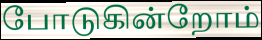
போடுகின்றோம்